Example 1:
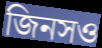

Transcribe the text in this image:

জিনসও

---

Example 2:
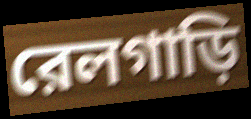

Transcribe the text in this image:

রেলগাড়ি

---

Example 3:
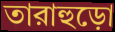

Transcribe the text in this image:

তারাহুড়ো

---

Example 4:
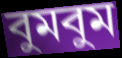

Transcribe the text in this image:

বুমবুম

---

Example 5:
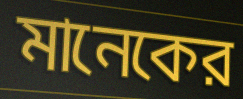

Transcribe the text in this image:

মানেকের